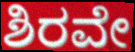
ಶಿರವೇ